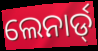
ଲେନାର୍ଡ୍